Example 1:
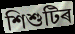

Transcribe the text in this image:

শিশুটিৰ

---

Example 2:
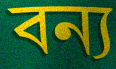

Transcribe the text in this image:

বন্য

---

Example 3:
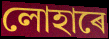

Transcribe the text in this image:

লোহাৰে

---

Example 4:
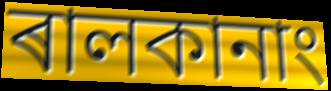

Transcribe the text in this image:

ৰালকানাং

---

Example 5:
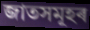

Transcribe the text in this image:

জাতসমূহৰ